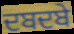
ਦਬਦਬੇ